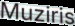
Muziris